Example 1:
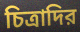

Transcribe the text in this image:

চিত্রাদির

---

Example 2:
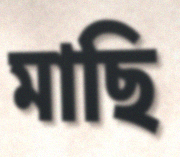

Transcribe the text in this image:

মাছি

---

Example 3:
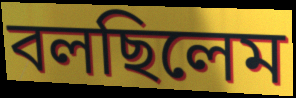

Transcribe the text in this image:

বলছিলেম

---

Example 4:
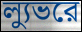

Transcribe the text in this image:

ল্যুভরে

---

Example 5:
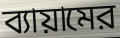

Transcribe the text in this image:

ব্যায়ামের